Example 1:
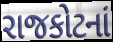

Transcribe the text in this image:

રાજકોટનાં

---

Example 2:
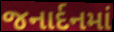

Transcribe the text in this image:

જનાર્દનમાં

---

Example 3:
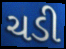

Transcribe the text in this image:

ચડી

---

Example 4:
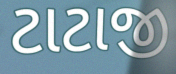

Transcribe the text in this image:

ટાટાજી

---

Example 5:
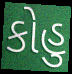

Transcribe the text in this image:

કોહુ